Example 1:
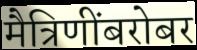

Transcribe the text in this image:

मैत्रिणींबरोबर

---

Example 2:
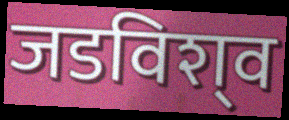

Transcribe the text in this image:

जडविश्व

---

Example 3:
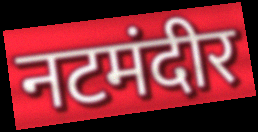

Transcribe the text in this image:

नटमंदीर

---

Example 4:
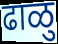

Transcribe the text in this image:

ढाळु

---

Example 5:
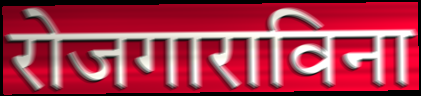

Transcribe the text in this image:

रोजगाराविना